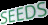
SEEDS